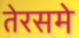
तेरसमे